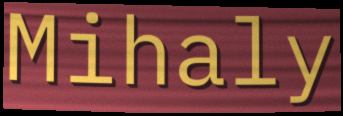
Mihaly